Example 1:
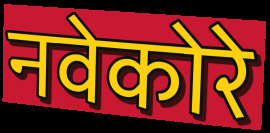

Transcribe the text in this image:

नवेकोरे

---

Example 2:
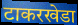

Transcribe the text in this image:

टाकरखेडा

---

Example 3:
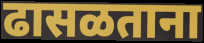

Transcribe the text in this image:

ढासळताना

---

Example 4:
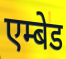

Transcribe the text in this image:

एम्बेड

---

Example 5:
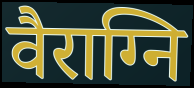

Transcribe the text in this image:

वैराग्नि